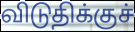
விடுதிக்குச்